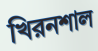
খিরনশাল